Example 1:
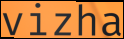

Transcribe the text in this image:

vizha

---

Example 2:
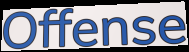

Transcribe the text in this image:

Offense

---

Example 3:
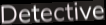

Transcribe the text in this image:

Detective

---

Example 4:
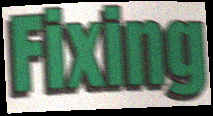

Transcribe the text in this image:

Fixing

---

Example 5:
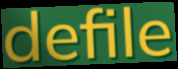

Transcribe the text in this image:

defile